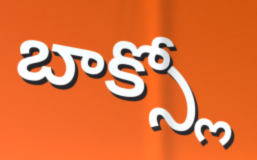
బాక్స్లో